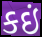
કઇં